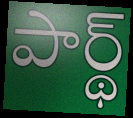
పార్థ్